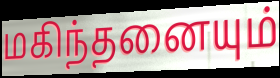
மகிந்தனையும்